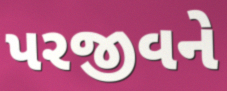
પરજીવને